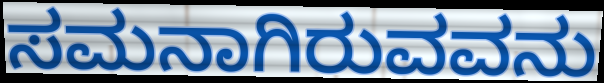
ಸಮನಾಗಿರುವವನು